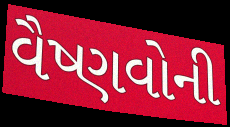
વૈષ્ણવોની